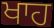
ਖਾਹ